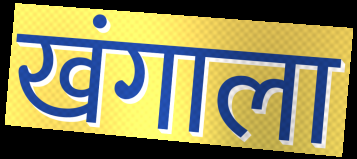
खंगाला